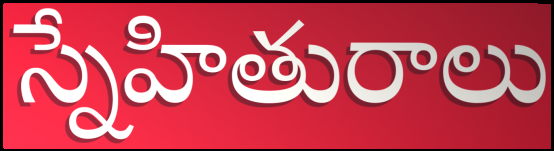
స్నేహితురాలు